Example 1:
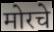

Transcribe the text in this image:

मोरचे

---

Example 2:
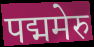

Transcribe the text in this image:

पद्ममेरु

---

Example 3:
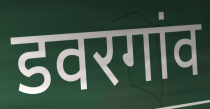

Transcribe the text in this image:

डवरगांव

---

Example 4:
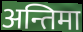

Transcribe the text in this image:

अन्तिमा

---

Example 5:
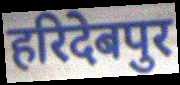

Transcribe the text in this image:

हरिदेबपुर